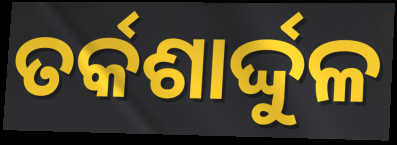
ତର୍କଶାର୍ଦ୍ଦୁଳ